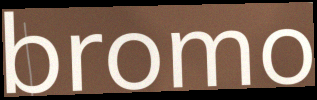
bromo